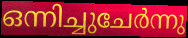
ഒന്നിച്ചുചേർന്നു